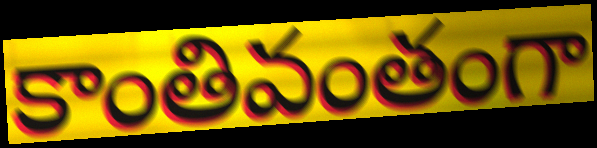
కాంతివంతంగా